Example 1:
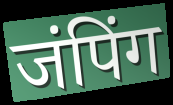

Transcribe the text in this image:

जंपिंग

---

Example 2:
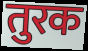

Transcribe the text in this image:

तुरक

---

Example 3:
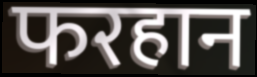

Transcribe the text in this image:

फरहान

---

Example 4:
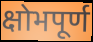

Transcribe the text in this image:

क्षोभपूर्ण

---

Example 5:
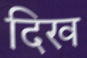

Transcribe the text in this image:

दिख